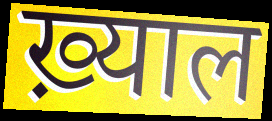
ख़्याल